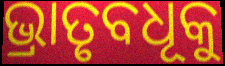
ଭ୍ରାତୃବଧୂକୁ